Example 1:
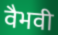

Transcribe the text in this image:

वैभवी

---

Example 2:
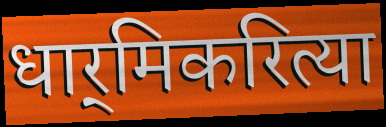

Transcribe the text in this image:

धार्मिकरित्या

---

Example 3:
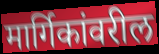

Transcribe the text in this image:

मार्गिकांवरील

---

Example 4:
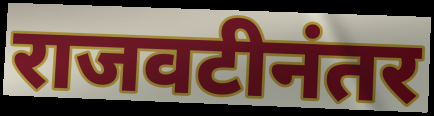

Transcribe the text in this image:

राजवटीनंतर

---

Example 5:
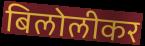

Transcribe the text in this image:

बिलोलीकर